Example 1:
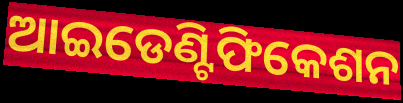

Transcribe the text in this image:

ଆଇଡେଣ୍ଟିଫିକେଶନ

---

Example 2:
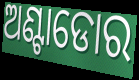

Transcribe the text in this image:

ଅଣ୍ଟାଡୋର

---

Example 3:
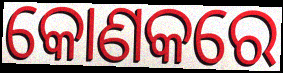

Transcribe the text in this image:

କୋଣକରେ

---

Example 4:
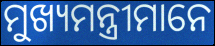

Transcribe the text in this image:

ମୁଖ୍ୟମନ୍ତ୍ରୀମାନେ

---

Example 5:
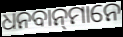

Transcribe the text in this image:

ଧନବାନ୍‍ମାନେ